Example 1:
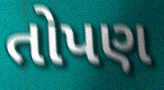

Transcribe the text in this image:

તોપણ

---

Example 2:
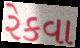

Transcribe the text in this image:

રેકવા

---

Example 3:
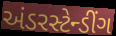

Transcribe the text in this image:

અંડરસ્ટેન્ડીંગ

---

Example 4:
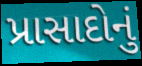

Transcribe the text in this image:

પ્રાસાદોનું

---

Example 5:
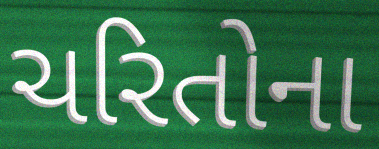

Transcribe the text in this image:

ચરિતોના